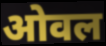
ओवल